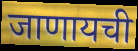
जाणायची